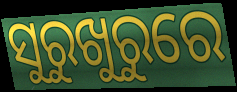
ସୁରୁଖୁରୁରେ